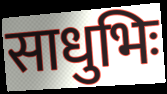
साधुभिः